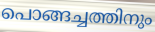
പൊങ്ങച്ചത്തിനും